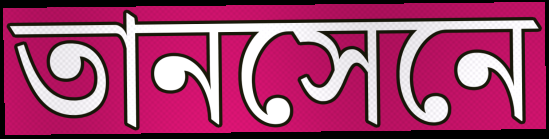
তানসেনে